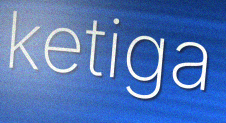
ketiga